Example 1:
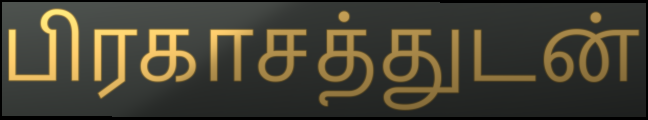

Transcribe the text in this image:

பிரகாசத்துடன்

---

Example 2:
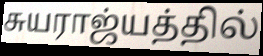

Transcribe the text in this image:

சுயராஜ்யத்தில்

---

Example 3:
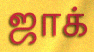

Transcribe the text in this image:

ஜாக்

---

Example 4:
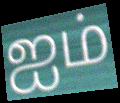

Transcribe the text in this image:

ஐம்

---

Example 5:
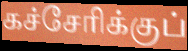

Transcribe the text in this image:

கச்சேரிக்குப்